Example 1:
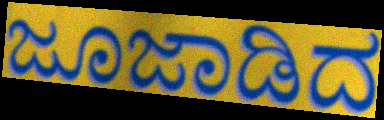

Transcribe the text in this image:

ಜೂಜಾಡಿದ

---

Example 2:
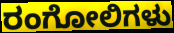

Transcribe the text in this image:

ರಂಗೋಲಿಗಳು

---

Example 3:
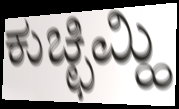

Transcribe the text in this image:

ಕುಚ್ಛಿಮ್ಹಿ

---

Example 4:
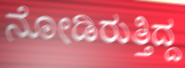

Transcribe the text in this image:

ನೋಡಿರುತ್ತಿದ್ದ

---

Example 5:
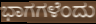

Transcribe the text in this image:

ಭಾಗಗಳೆಂದು